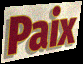
Paix